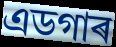
এডগাৰ